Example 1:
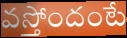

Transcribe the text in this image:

వస్తోందంటే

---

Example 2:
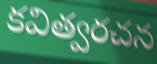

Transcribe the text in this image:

కవిత్వరచన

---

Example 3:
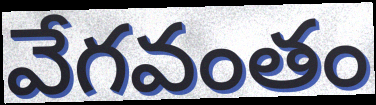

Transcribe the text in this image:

వేగవంతం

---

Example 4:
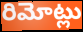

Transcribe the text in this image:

రిమోట్లు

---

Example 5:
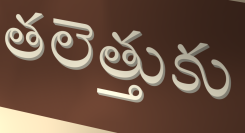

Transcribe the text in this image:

తలెత్తుకు